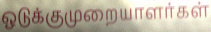
ஒடுக்குமுறையாளர்கள்